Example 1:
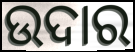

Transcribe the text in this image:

ଉଦାର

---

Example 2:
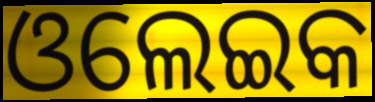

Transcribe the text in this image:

ଓଲେଇକ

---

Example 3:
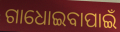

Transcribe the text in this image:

ଗାଧୋଇବାପାଇଁ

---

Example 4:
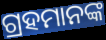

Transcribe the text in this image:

ଗ୍ରହମାନଙ୍କ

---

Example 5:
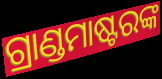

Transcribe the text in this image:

ଗ୍ରାଣ୍ଡମାଷ୍ଟରଙ୍କ